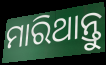
ମାରିଥାନ୍ତୁ